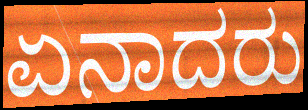
ಏನಾದರು